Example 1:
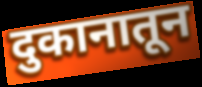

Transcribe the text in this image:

दुकानातून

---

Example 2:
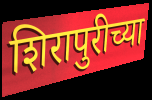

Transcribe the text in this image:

शिरापुरीच्या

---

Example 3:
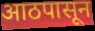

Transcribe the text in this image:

आठपासून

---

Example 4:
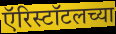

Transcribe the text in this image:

ऍरिस्टॉटलच्या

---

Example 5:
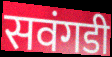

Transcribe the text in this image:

सवंगडी